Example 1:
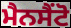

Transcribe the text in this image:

ਮੈਨਸੈਂਟੋ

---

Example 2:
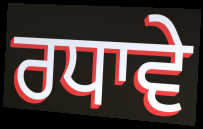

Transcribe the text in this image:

ਰਧਾਵੇ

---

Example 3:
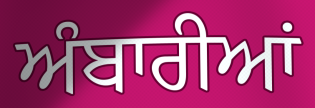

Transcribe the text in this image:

ਅੰਬਾਰੀਆਂ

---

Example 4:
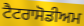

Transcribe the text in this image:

ਟੈਟਰਾਸੋਡੀਅਮ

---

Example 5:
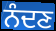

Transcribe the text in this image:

ਨੰਦਣ